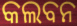
କଲବନ